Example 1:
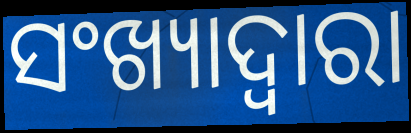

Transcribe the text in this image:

ସଂଖ୍ୟାଦ୍ୱାରା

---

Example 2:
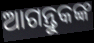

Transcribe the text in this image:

ଆଗନ୍ତୁକଙ୍କ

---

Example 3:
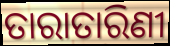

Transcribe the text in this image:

ତାରାତାରିଣୀ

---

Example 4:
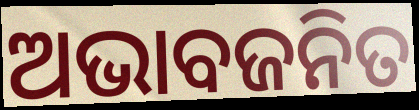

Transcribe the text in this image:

ଅଭାବଜନିତ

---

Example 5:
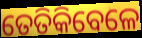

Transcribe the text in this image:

ତେତିକିବେଳେ